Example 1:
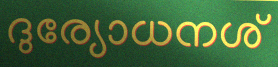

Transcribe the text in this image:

ദുര്യോധനശ്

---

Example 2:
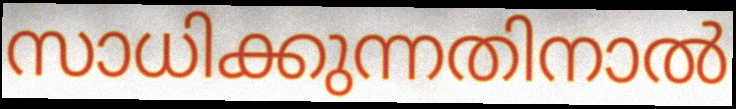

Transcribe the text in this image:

സാധിക്കുന്നതിനാൽ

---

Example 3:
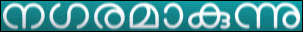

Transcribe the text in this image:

നഗരമാകുന്നു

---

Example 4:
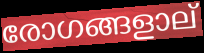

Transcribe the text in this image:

രോഗങ്ങളാല്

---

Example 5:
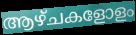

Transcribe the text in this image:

ആഴ്ചകളോളം